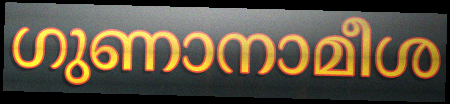
ഗുണാനാമീശ